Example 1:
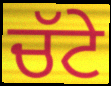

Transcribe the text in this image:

ਚੱਟੇ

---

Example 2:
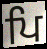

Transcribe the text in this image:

ਪਿ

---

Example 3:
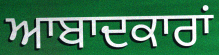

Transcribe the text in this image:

ਆਬਾਦਕਾਰਾਂ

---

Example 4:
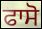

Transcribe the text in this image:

ਫਾਸੋ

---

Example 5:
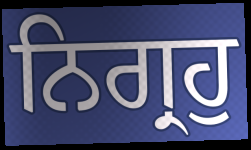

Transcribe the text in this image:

ਨਿਗ੍ਰਹੁ